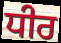
ਧੀਰ